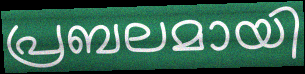
പ്രബലമായി